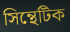
সিন্থেটিক